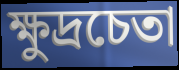
ক্ষুদ্রচেতা